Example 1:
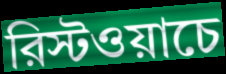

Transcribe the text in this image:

রিস্টওয়াচে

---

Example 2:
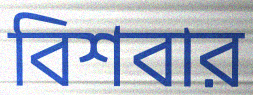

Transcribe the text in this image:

বিশবার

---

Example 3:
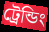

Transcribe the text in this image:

ট্রেন্ডিং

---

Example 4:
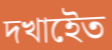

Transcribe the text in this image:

দখাইেত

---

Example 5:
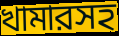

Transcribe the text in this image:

খামারসহ